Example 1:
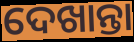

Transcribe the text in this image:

ଦେଖାନ୍ତା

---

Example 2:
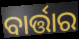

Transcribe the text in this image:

ବାର୍ତ୍ତାର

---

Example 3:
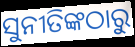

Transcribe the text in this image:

ସୁନୀତିଙ୍କଠାରୁ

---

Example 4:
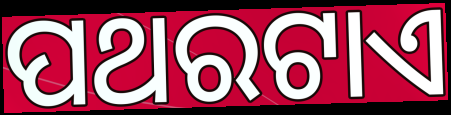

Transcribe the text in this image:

ପଥରଟାଏ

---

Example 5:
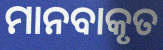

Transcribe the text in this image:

ମାନବାକୃତ